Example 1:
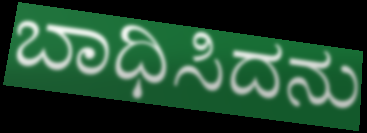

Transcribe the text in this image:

ಬಾಧಿಸಿದನು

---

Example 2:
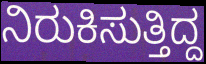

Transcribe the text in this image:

ನಿರುಕಿಸುತ್ತಿದ್ದ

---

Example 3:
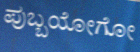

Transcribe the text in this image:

ಪುಬ್ಬಯೋಗೋ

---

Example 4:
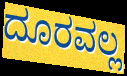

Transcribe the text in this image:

ದೂರವಲ್ಲ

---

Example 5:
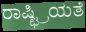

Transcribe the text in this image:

ರಾಷ್ಟ್ರಿಯತೆ